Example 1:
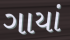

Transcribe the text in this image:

ગાયાં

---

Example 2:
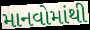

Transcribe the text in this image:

માનવોમાંથી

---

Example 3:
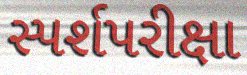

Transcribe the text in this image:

સ્પર્શપરીક્ષા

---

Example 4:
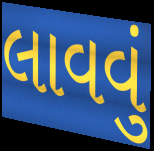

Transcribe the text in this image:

લાવવું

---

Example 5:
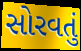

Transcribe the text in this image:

સોરવતું